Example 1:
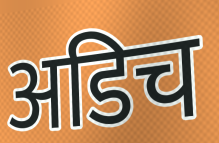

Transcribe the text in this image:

अडिच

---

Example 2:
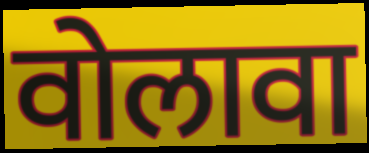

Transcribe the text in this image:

वोलावा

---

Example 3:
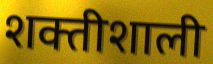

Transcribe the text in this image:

शक्‍तीशाली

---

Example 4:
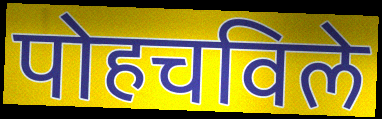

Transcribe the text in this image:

पोहचविले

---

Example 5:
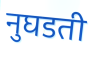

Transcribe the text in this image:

नुघडती